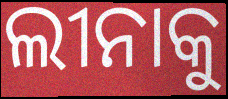
ଲୀନାକୁ